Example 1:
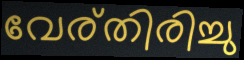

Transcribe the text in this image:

വേര്തിരിച്ചു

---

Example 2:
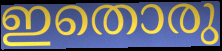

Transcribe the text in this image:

ഇതൊരു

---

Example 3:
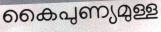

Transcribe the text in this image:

കൈപുണ്യമുള്ള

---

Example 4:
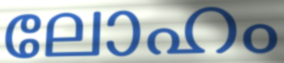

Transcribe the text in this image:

ലോഹം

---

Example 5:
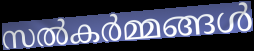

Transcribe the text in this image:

സൽകർമ്മങ്ങൾ